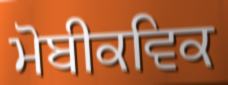
ਮੋਬੀਕਵਿਕ